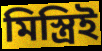
মিস্ত্রিই